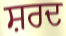
ਸ਼ਰਦ